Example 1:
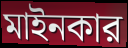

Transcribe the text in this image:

মাইনকার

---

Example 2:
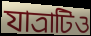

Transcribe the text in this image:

যাত্রাটিও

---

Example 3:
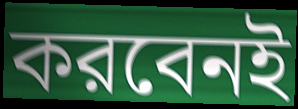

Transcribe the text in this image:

করবেনই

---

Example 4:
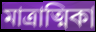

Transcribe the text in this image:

মাত্রাত্মিকা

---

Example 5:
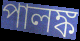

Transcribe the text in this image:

পালঙ্ক